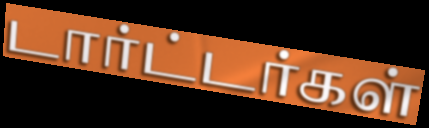
டார்ட்டர்கள்